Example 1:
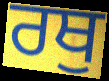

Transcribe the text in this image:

ਰਥੁ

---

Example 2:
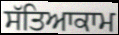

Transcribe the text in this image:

ਸੱਤਿਆਕਾਮ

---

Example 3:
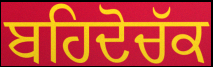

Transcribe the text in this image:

ਬਹਿਦੋਚੱਕ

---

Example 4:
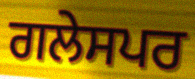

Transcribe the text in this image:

ਗਲੇਸਪਰ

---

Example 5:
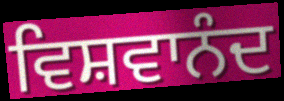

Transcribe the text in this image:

ਵਿਸ਼ਵਾਨੰਦ